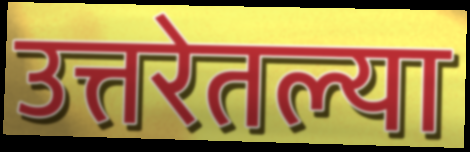
उत्तरेतल्या